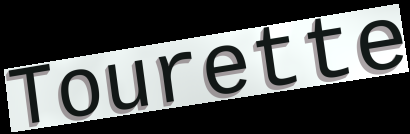
Tourette